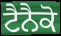
ਟੈਨੈਕੋ